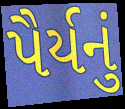
પૈર્યનું